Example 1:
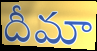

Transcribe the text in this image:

దీమా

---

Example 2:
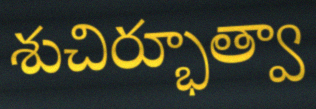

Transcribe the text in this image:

శుచిర్భూత్వా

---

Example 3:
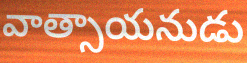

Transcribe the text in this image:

వాత్సాయనుడు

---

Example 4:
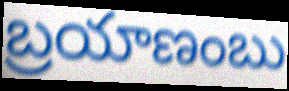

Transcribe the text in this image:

బ్రయాణంబు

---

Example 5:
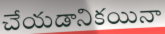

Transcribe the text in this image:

చేయడానికయినా